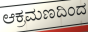
ಆಕ್ರಮಣದಿಂದ